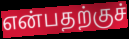
என்பதற்குச்